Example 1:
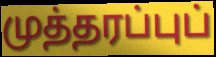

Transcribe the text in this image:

முத்தரப்புப்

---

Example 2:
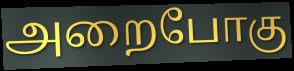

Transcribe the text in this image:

அறைபோகு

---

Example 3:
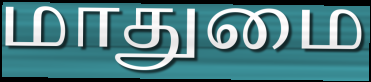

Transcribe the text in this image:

மாதுமை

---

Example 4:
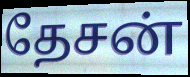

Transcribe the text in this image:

தேசன்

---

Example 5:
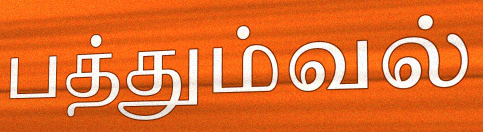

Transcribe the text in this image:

பத்தும்வல்